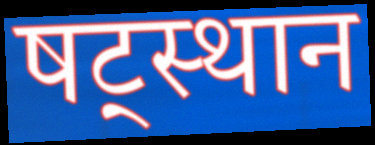
षट्स्थान